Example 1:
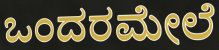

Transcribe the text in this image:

ಒಂದರಮೇಲೆ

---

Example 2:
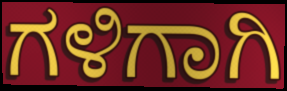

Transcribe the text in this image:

ಗಳಿಗಾಗಿ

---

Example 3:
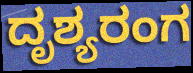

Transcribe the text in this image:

ದೃಶ್ಯರಂಗ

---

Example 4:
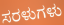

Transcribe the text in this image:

ಸರಳುಗಳು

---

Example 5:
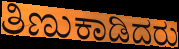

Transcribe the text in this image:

ತಿಣುಕಾಡಿದರು